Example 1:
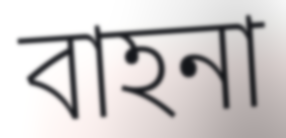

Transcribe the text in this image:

বাহনা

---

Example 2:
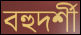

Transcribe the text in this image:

বহুদর্শী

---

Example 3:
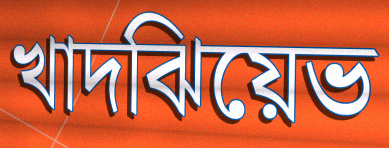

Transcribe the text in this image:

খাদঝিয়েভ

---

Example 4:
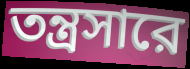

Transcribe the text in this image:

তন্ত্রসারে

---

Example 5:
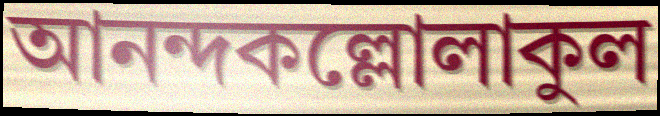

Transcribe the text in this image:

আনন্দকল্লোলাকুল